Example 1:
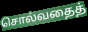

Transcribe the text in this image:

சொல்வதைத்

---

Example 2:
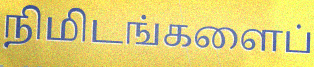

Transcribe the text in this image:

நிமிடங்களைப்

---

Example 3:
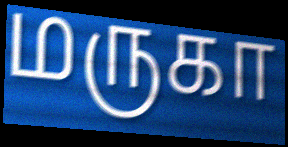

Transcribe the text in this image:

மருகா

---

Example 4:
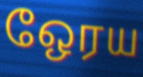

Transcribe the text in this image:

ஒேரய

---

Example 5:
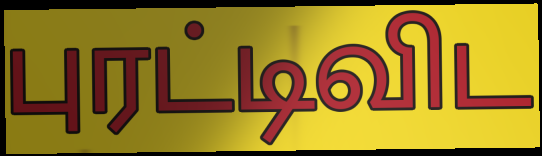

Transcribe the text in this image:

புரட்டிவிட